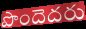
పొందెదరు